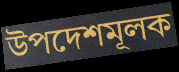
উপদেশমূলক